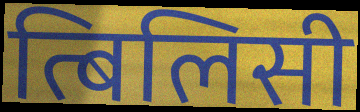
त्बिलिसी